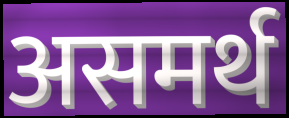
असमर्थ